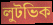
লুটভিক